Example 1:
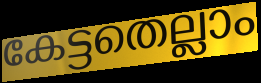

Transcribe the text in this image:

കേട്ടതെല്ലാം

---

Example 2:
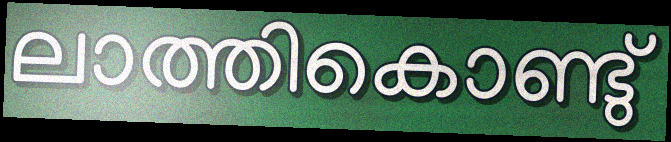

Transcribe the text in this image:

ലാത്തികൊണ്ടു്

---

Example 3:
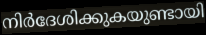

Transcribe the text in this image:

നിർദേശിക്കുകയുണ്ടായി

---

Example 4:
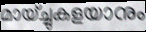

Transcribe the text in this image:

മായ്ച്ചുകളയാനും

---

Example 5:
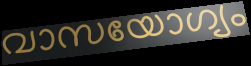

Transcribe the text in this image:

വാസയോഗ്യം